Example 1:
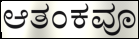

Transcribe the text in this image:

ಆತಂಕವೂ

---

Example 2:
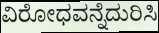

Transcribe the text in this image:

ವಿರೋಧವನ್ನೆದುರಿಸಿ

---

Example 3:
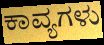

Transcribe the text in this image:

ಕಾವ್ಯಗಳು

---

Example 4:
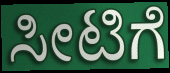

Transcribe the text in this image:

ಸೀಟಿಗೆ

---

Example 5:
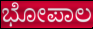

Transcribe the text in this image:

ಭೋಪಾಲ